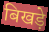
बिखड़े